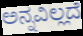
ಅನ್ನವಿಲ್ಲದೆ